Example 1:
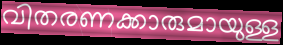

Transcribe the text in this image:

വിതരണക്കാരുമായുള്ള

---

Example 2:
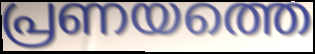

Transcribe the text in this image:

പ്രണയത്തെ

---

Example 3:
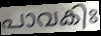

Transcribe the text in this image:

പാവകിഃ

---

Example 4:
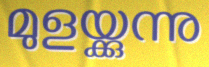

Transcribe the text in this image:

മുളയ്ക്കുന്നു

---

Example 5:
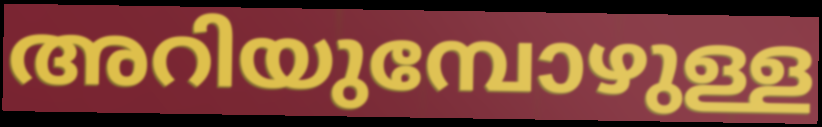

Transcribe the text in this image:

അറിയുമ്പോഴുള്ള